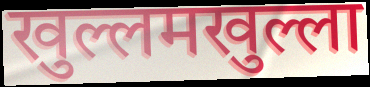
खुल्लमखुल्ला